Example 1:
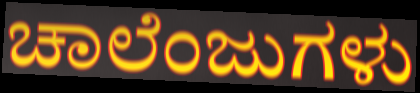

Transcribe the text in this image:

ಚಾಲೆಂಜುಗಳು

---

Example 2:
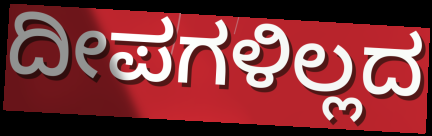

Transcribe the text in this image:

ದೀಪಗಳಿಲ್ಲದ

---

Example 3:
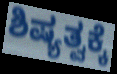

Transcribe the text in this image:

ಶಿಷ್ಯತ್ವಕ್ಕೆ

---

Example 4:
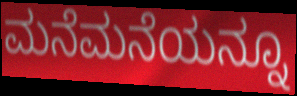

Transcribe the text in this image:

ಮನೆಮನೆಯನ್ನೂ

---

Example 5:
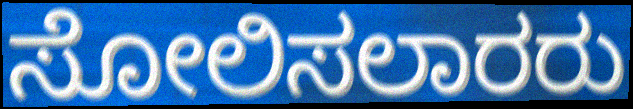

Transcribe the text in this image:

ಸೋಲಿಸಲಾರರು